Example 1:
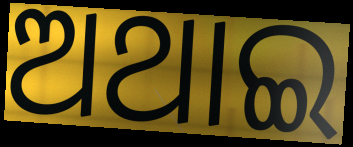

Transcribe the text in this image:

ଅଥାଇ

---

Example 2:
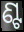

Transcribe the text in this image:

ଣ୍ଟ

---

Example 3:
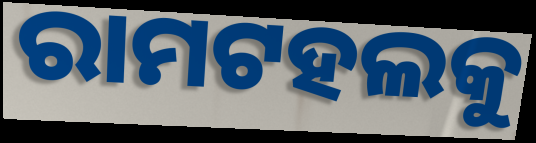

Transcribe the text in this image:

ରାମଟହଲକୁ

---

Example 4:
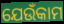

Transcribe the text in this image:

ଯେଉଁକାମ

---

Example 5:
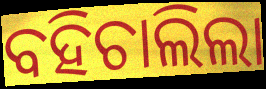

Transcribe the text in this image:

ବହିଚାଲିଲା